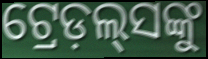
ଟ୍ରେଡ଼ଲ୍‍ସଙ୍କୁ